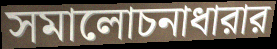
সমালোচনাধারার